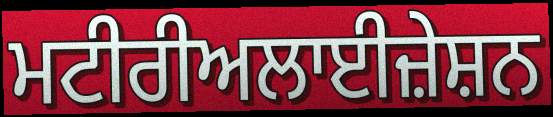
ਮਟੀਰੀਅਲਾਈਜ਼ੇਸ਼ਨ